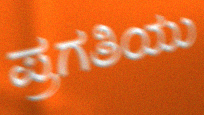
ಪ್ರಗತಿಯು